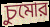
চুমোর